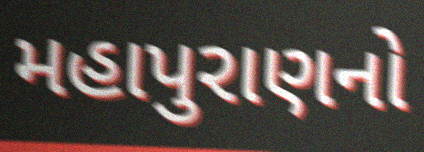
મહાપુરાણનો